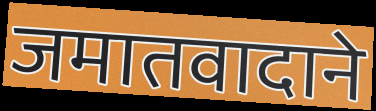
जमातवादाने